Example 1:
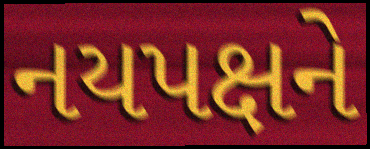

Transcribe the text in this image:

નયપક્ષને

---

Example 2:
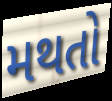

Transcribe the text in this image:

મથતો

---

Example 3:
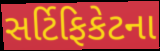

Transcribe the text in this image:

સર્ટિફિકેટના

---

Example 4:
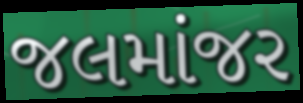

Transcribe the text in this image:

જલમાંજર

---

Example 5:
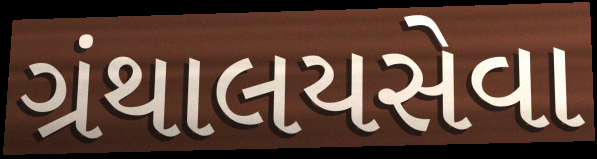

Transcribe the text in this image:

ગ્રંથાલયસેવા